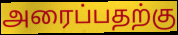
அரைப்பதற்கு